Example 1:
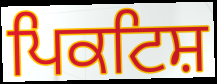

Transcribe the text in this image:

ਪਿਕਟਿਸ਼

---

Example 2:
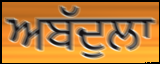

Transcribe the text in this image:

ਅਬੱਦੁਲਾ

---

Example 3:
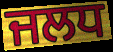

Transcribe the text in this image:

ਜਲਧ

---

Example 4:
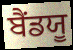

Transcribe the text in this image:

ਬੈਂਡਯੂ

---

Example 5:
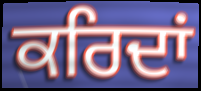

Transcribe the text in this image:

ਕਰਿਦਾਂ